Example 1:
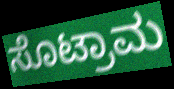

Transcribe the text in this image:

ಸೊಟ್ರಾಮ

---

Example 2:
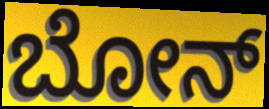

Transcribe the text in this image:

ಬೋನ್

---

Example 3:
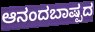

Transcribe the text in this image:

ಆನಂದಬಾಷ್ಪದ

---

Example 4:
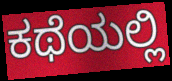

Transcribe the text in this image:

ಕಥೆಯಲ್ಲಿ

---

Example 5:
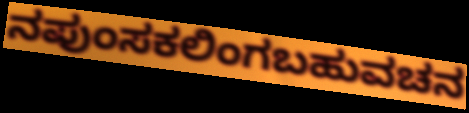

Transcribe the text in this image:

ನಪುಂಸಕಲಿಂಗಬಹುವಚನ